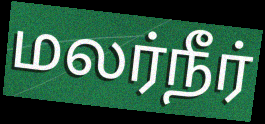
மலர்நீர்